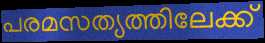
പരമസത്യത്തിലേക്ക്